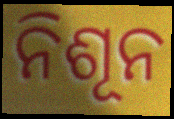
ନିଶୂନ